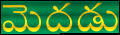
మెదడు